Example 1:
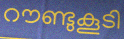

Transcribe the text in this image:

റൗണ്ടുകൂടി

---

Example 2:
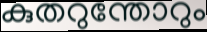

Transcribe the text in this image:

കുതറുന്തോറും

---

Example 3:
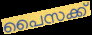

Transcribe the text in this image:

പൈസക്ക്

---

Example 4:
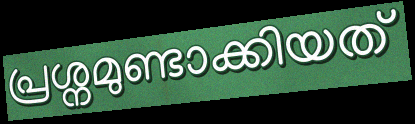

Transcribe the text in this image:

പ്രശ്നമുണ്ടാക്കിയത്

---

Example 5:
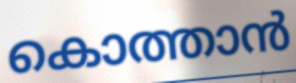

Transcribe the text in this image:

കൊത്താൻ